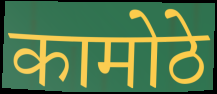
कामोठे